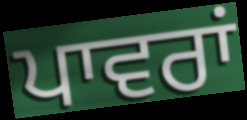
ਪਾਵਰਾਂ